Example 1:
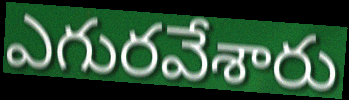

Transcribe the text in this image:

ఎగురవేశారు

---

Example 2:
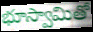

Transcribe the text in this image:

భూస్వామితో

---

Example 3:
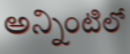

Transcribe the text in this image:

అన్నింటిలో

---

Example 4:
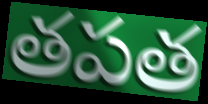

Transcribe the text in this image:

తపత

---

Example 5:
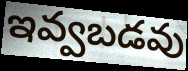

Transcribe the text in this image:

ఇవ్వబడవు